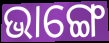
ଭାଙ୍ଗେ